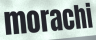
morachi